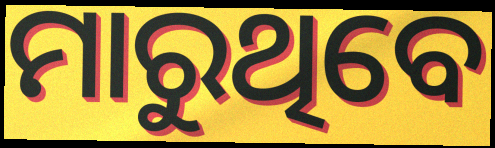
ମାରୁଥିବେ